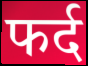
फर्द